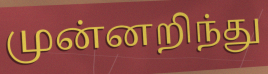
முன்னறிந்து